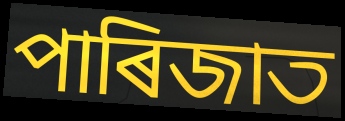
পাৰিজাত